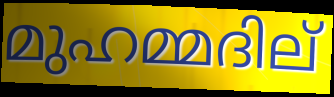
മുഹമ്മദില്